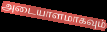
அடையாளமாகவும்